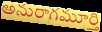
అనురాగమూర్తి